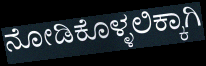
ನೋಡಿಕೊಳ್ಳಲಿಕ್ಕಾಗಿ